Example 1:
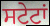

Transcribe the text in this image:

ਸਟੇਟਾਂ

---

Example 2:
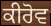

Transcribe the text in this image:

ਕੀਰੋਵ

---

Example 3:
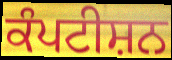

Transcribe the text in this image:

ਕੰਪਟੀਸ਼ਨ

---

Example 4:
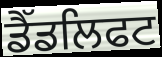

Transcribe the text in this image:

ਡੈੱਡਲਿਫਟ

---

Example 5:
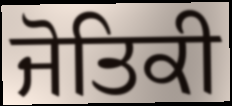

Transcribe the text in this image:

ਜੋਤਿਕੀ